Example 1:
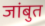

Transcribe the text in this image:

जांबुत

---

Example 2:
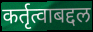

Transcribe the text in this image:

कर्तृत्वाबद्दल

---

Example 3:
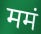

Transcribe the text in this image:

ममं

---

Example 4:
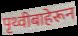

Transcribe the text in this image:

पृथ्वीबाहेरून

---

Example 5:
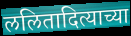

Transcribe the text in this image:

ललितादित्याच्या